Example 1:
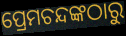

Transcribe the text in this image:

ପ୍ରେମଚନ୍ଦଙ୍କଠାରୁ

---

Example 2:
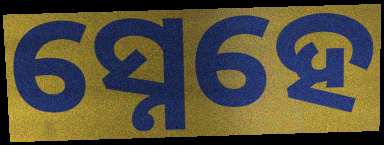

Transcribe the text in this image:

ସ୍ନେହେ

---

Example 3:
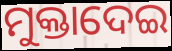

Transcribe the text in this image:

ମୁକ୍ତାଦେଇ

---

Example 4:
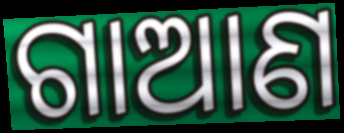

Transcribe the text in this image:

ଗାଆଣ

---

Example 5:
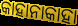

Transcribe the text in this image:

କାହାନାକାହା